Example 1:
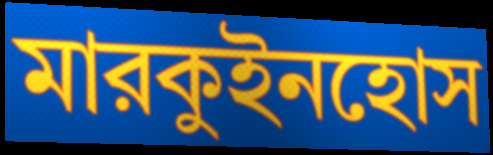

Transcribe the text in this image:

মারকুইনহোস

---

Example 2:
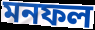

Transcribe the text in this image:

মনফল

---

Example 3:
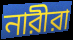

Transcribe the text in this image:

নারীরা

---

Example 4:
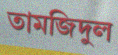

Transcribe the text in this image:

তামজিদুল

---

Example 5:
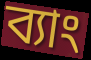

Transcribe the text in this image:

ব্যাং